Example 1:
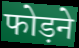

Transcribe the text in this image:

फोड़ने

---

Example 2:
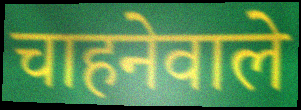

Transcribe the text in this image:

चाहनेवाले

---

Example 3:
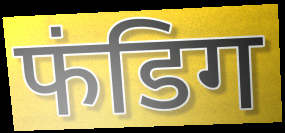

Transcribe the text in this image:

फंडिग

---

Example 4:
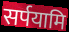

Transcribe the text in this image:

सर्पयामि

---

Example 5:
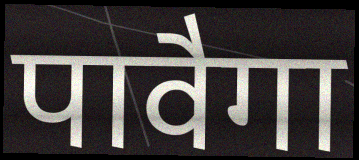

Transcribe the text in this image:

पावैगा